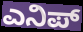
ಎನಿಪ್